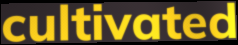
cultivated